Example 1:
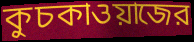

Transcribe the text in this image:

কুচকাওয়াজের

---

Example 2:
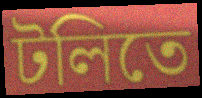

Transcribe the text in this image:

টলিতে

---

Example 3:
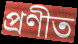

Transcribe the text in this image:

প্রণীত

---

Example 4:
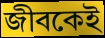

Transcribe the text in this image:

জীবকেই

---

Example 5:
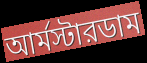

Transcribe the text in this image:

আর্মস্টারডাম